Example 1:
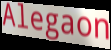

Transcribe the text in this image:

Alegaon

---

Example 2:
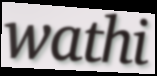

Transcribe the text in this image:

wathi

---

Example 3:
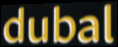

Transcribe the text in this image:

dubal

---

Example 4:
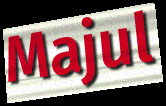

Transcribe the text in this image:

Majul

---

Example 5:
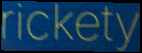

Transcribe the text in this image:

rickety